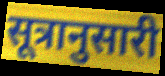
सूत्रानुसारी